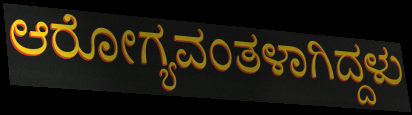
ಆರೋಗ್ಯವಂತಳಾಗಿದ್ದಳು